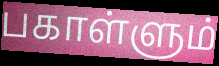
பகாள்ளும்